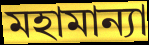
মহামান্যা